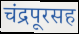
चंद्रपूरसह